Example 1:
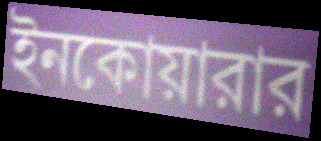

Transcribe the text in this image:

ইনকোয়ারার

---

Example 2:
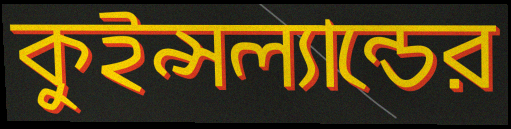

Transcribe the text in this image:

কুইন্সল্যান্ডের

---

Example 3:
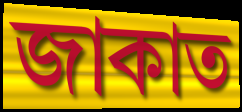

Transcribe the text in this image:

জাকাত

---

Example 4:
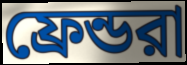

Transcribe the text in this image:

ফ্রেন্ডরা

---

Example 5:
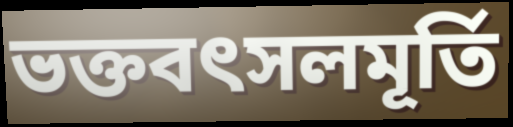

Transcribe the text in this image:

ভক্তবৎসলমূর্তি